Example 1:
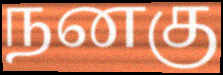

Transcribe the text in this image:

நனகு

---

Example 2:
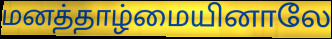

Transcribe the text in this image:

மனத்தாழ்மையினாலே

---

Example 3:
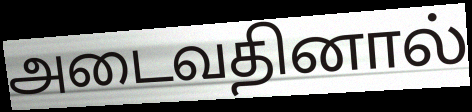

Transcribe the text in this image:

அடைவதினால்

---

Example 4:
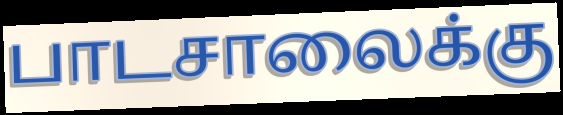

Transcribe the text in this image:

பாடசாலைக்கு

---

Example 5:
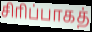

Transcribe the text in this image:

சிரிப்பாகத்